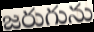
జరుగును